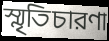
স্মৃতিচারণা